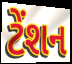
ટેંશન